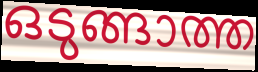
ഒടുങ്ങാത്ത